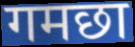
गमछा